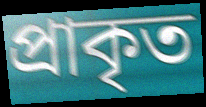
প্রাকৃত